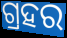
ଗ୍ରହର